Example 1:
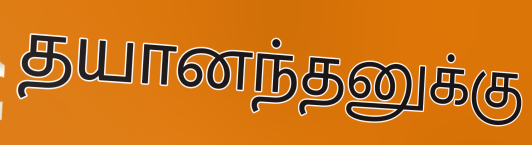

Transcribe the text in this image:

தயானந்தனுக்கு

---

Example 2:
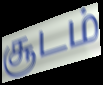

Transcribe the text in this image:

சூடம்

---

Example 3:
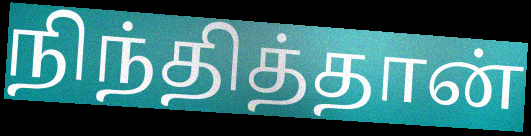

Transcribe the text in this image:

நிந்தித்தான்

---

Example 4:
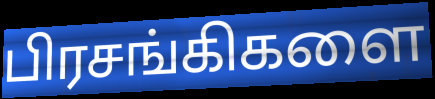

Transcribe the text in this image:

பிரசங்கிகளை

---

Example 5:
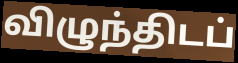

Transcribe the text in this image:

விழுந்திடப்